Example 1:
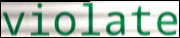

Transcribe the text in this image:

violate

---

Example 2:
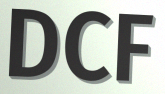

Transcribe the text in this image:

DCF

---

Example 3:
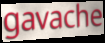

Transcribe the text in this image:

gavache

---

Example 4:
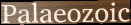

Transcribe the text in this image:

Palaeozoic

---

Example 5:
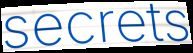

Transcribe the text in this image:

secrets